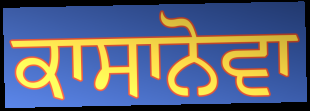
ਕਾਸਾਨੋਵਾ